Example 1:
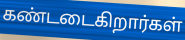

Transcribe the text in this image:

கண்டடைகிறார்கள்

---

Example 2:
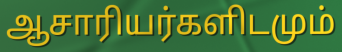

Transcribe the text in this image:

ஆசாரியர்களிடமும்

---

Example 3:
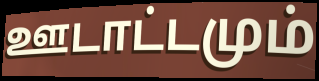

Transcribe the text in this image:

ஊடாட்டமும்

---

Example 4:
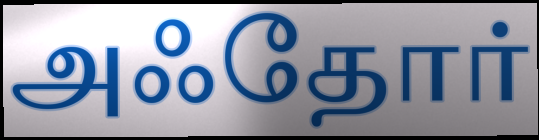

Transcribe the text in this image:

அஃதோர்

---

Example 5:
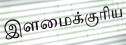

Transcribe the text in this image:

இளமைக்குரிய